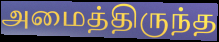
அமைத்திருந்த